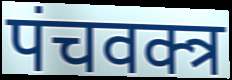
पंचवक्त्र